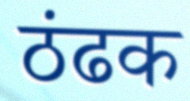
ठंढक